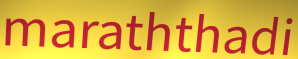
maraththadi